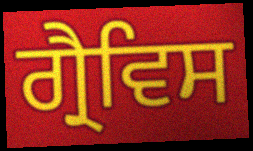
ਗ੍ਰੈਵਿਸ